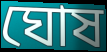
ঘোষ